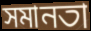
সমানতা